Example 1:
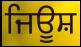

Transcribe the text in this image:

ਜਿਊਸ਼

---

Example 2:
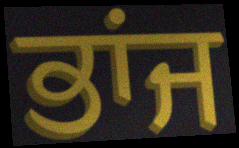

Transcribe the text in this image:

ਭਾਂਜ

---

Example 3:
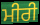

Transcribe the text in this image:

ਮੀਰੀ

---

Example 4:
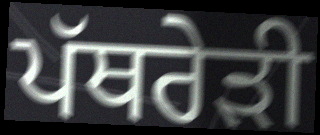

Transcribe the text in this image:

ਪੱਥਰੇੜੀ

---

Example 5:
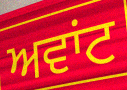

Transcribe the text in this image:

ਅਵਾਂਟ